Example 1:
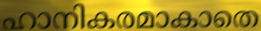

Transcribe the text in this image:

ഹാനികരമാകാതെ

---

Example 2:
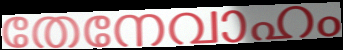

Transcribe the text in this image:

തേനേവാഹം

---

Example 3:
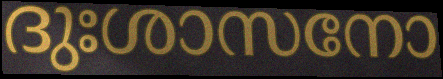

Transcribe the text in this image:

ദുഃശാസനോ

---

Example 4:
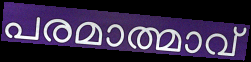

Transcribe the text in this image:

പരമാത്മാവ്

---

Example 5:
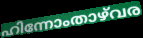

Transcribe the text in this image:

ഹിന്നോംതാഴ്‌വര